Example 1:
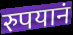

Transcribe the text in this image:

रुपयानं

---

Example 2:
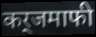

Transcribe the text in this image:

कर्जमाफी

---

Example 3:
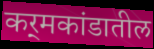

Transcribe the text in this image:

कर्मकांडातील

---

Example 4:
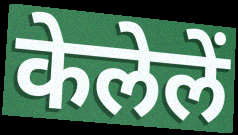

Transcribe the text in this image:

केलेलें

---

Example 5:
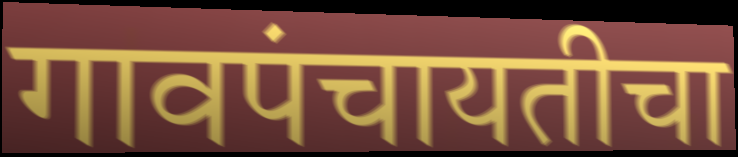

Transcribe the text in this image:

गावपंचायतीचा